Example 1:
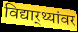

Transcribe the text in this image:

विद्यार्थ्यांवर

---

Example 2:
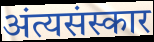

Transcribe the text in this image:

अंत्यसंस्कार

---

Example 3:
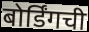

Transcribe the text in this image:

बोर्डिंगची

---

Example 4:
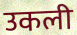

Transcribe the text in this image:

उकली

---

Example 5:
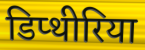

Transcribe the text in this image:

डिप्थीरिया